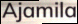
Ajamila